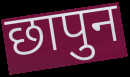
छापुन